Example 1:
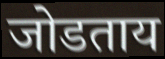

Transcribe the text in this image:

जोडताय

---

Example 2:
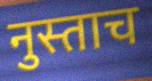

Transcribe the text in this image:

नुस्ताच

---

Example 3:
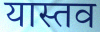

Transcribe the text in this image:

यास्तव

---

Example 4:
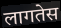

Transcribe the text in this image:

लागतेस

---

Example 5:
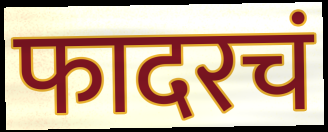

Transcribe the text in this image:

फादरचं